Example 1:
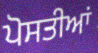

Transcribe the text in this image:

ਪੋਸਤੀਆਂ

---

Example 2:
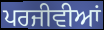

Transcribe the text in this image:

ਪਰਜੀਵੀਆਂ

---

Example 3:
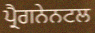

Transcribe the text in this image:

ਪ੍ਰੈਗਨੇਨਟਲ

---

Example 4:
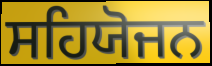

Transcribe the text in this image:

ਸਹਿਯੋਜਨ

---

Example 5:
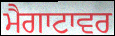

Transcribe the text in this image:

ਮੈਗਾਟਾਵਰ